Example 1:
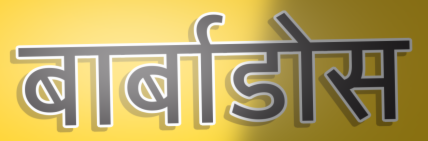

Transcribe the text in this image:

बार्बाडोस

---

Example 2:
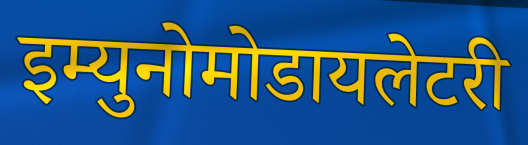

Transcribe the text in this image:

इम्युनोमोडायलेटरी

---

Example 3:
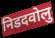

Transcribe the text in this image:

निडदवोलु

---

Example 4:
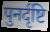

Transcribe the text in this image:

पुनर्दृष्टि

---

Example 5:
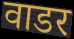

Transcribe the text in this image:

वाडर